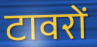
टावरों